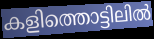
കളിത്തൊട്ടിലിൽ